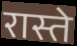
रास्ते